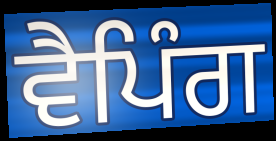
ਵੈਪਿੰਗ